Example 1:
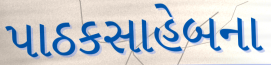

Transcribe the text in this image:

પાઠકસાહેબના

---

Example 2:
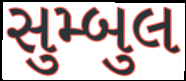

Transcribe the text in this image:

સુમ્બુલ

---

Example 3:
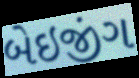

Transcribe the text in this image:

બેઇજીંગ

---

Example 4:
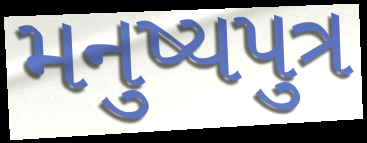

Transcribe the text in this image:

મનુષ્યપુત્ર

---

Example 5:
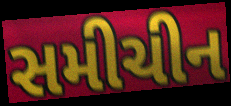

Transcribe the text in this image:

સમીચીન